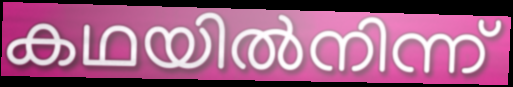
കഥയിൽനിന്ന്